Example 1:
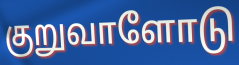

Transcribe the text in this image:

குறுவாளோடு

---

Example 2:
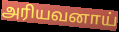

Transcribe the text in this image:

அரியவனாய்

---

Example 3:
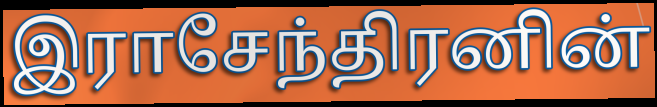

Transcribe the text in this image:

இராசேந்திரனின்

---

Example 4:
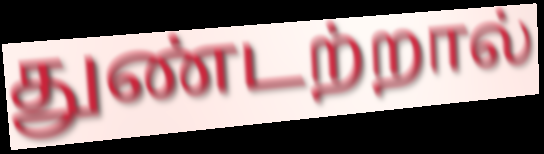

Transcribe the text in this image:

துண்டற்றால்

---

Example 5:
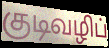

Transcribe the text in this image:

குடிவழிப்